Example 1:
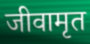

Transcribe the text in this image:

जीवामृत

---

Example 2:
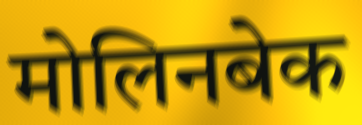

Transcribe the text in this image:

मोलिनबेक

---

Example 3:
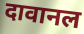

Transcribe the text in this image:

दावानल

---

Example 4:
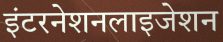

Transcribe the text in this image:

इंटरनेशनलाइजेशन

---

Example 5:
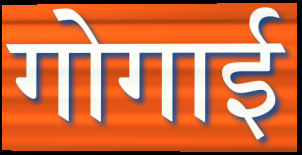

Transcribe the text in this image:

गोगाई